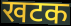
खटक